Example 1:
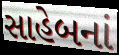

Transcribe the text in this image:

સાહેબનાં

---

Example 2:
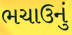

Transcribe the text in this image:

ભચાઉનું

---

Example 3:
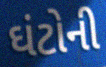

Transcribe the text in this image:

ઘંટોની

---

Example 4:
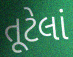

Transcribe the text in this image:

તૂટેલાં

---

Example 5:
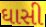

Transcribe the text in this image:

ઘાસી